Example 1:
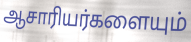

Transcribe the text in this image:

ஆசாரியர்களையும்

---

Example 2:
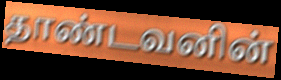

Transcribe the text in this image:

தாண்டவனின்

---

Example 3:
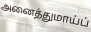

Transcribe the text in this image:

அனைத்துமாய்ப்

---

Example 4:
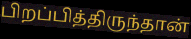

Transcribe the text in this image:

பிறப்பித்திருந்தான்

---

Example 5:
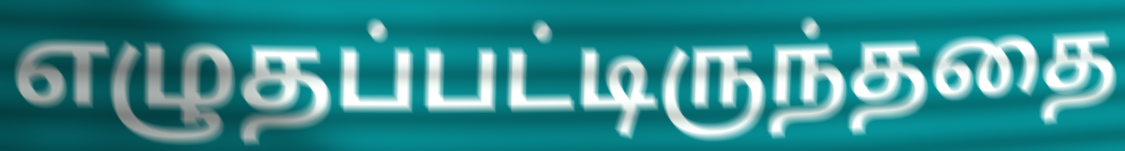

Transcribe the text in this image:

எழுதப்பட்டிருந்ததை